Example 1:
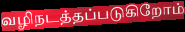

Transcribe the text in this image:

வழிநடத்தப்படுகிறோம்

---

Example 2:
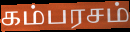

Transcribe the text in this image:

கம்பரசம்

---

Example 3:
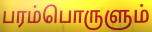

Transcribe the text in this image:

பரம்பொருளும்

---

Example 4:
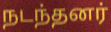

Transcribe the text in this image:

நடந்தனர்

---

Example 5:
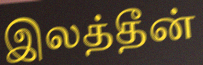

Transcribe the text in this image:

இலத்தீன்